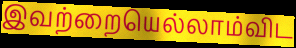
இவற்றையெல்லாம்விட